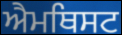
ਐਮਥਿਸਟ